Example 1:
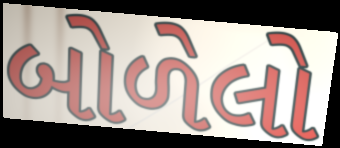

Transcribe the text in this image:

બોળેલો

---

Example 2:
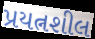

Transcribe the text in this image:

પ્રયત્નશીલ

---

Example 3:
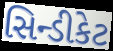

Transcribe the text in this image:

સિન્ડીકેટ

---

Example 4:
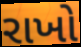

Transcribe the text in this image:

રાખો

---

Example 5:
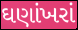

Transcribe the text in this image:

ઘણાંખરાં